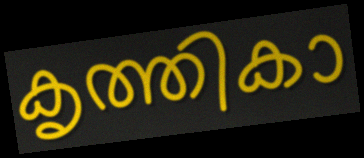
കൃത്തികാ